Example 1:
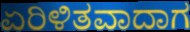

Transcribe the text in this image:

ಏರಿಳಿತವಾದಾಗ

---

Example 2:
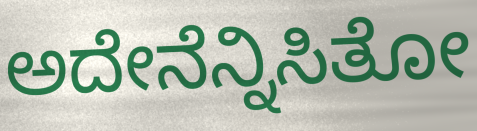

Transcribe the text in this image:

ಅದೇನೆನ್ನಿಸಿತೋ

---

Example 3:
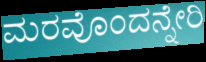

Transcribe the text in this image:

ಮರವೊಂದನ್ನೇರಿ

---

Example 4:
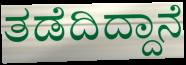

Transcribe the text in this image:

ತಡೆದಿದ್ದಾನೆ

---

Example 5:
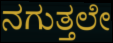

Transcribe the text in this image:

ನಗುತ್ತಲೇ